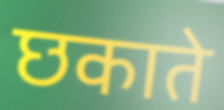
छकाते